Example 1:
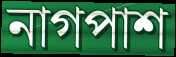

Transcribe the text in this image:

নাগপাশ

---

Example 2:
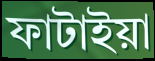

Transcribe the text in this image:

ফাটাইয়া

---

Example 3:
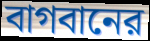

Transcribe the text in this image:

বাগবানের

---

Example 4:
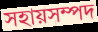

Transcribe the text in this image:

সহায়সম্পদ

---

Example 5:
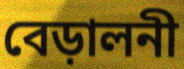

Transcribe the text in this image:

বেড়ালনী